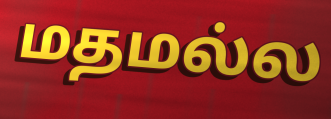
மதமல்ல